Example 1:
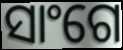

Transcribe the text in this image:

ସାଂଗେ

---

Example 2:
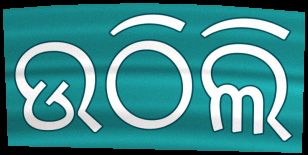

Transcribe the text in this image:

ଉଠିଲି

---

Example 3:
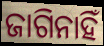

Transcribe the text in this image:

ଜାଗିନାହିଁ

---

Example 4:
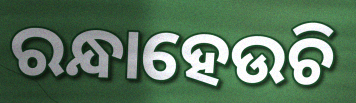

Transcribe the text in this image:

ରନ୍ଧାହେଉଚି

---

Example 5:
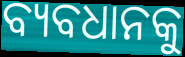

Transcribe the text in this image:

ବ୍ୟବଧାନକୁ